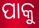
ପାକୁ